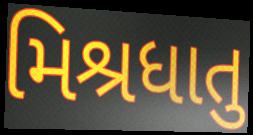
મિશ્રધાતુ